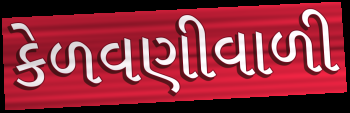
કેળવણીવાળી